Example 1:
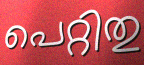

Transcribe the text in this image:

പെറ്റിതു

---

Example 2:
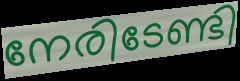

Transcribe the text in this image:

നേരിടേണ്ടി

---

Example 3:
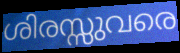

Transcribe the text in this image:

ശിരസ്സുവരെ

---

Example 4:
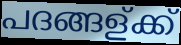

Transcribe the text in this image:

പദങ്ങള്ക്ക്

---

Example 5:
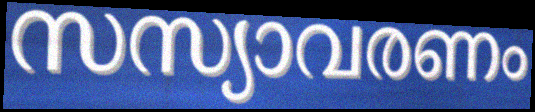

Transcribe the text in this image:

സസ്യാവരണം